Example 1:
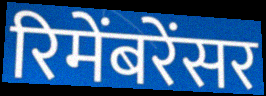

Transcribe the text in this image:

रिमेंबरेंसर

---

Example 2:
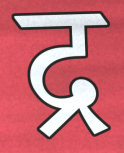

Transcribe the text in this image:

द्र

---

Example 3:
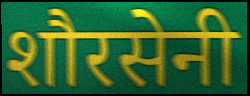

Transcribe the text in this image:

शौरसेनी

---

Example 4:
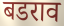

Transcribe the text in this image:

बडराव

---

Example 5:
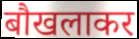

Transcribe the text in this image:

बौखलाकर